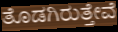
ತೊಡಗಿರುತ್ತೇವೆ